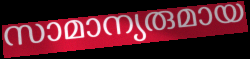
സാമാന്യരുമായ